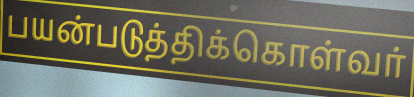
பயன்படுத்திக்கொள்வர்